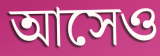
আসেও